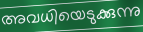
അവധിയെടുക്കുന്നു